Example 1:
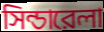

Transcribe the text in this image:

সিন্ডারেলা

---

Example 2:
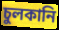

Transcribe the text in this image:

চুলকানি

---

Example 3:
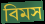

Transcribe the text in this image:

বিমস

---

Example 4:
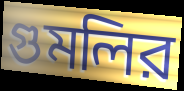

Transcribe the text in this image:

গুমলির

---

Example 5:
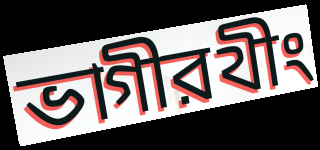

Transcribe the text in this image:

ভাগীরথীং